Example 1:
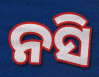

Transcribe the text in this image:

ନସି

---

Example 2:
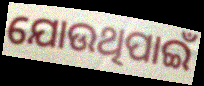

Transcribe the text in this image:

ଯୋଉଥିପାଇଁ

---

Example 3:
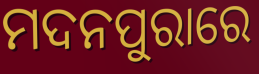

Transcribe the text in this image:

ମଦନପୁରାରେ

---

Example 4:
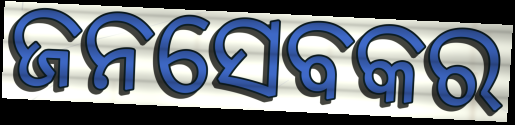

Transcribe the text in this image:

ଜନସେବକର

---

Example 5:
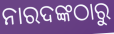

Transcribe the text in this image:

ନାରଦଙ୍କଠାରୁ